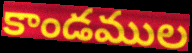
కాండముల